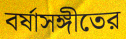
বর্ষাসঙ্গীতের